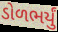
ડોળભર્યું